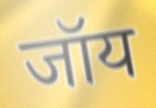
जॉय